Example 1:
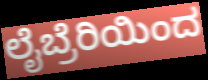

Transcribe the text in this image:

ಲೈಬ್ರೆರಿಯಿಂದ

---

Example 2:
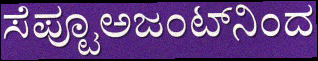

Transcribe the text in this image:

ಸೆಪ್ಟೂಅಜಂಟ್‌ನಿಂದ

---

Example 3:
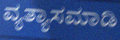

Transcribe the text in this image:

ವ್ಯತ್ಯಾಸಮಾಡಿ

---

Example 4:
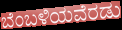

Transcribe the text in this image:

ಬೆಂಬಳಿಯವೆರಡು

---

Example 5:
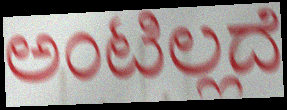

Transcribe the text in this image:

ಅಂಟಿಲ್ಲದೆ